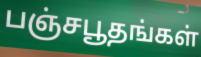
பஞ்சபூதங்கள்